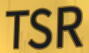
TSR